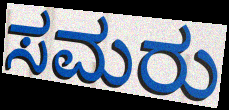
ಸಮರು